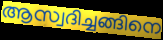
ആസ്വദിച്ചങ്ങിനെ